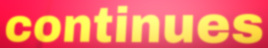
continues